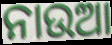
ନାଉଆ